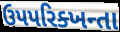
ઉપપરિક્ખન્તા